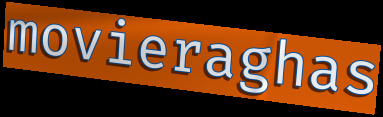
movieraghas